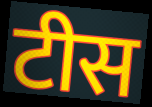
टीस